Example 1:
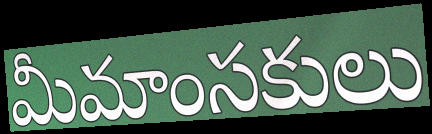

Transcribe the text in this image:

మీమాంసకులు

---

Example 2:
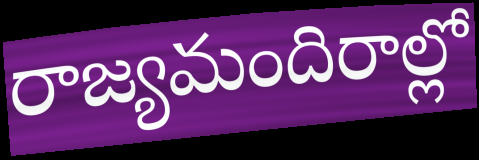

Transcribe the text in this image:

రాజ్యమందిరాల్లో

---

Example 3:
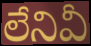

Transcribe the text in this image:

లేనివీ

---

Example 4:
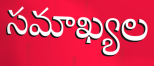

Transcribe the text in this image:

సమాఖ్యల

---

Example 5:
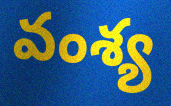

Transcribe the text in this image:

వంశ్య